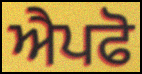
ਐਪਫੋ